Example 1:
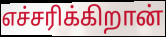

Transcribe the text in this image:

எச்சரிக்கிறான்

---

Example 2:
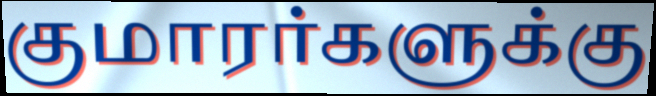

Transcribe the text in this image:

குமாரர்களுக்கு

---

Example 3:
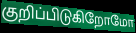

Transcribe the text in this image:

குறிப்பிடுகிறோமோ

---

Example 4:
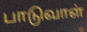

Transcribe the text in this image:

பாடுவாள்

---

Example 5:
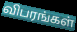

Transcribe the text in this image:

விபரங்கள்